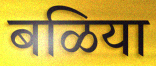
बळिया